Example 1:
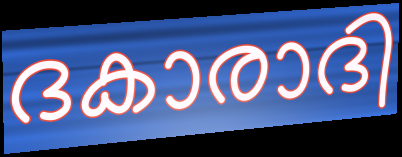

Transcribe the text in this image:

ദകാരാദി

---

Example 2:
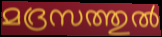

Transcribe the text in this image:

മദ്രസത്തുൽ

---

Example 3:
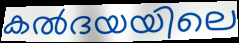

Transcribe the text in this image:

കൽദയയിലെ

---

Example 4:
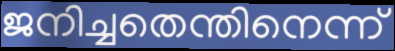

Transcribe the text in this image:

ജനിച്ചതെന്തിനെന്ന്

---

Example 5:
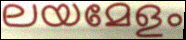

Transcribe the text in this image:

ലയമേളം